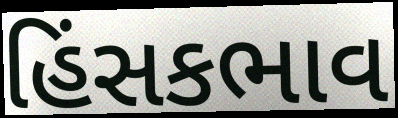
હિંસકભાવ